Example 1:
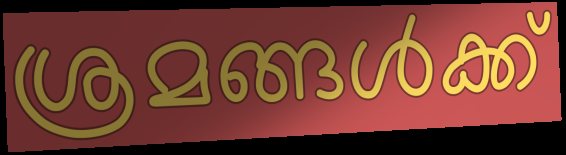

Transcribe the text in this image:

ശ്രമങ്ങൾക്ക്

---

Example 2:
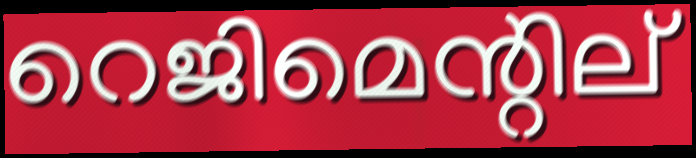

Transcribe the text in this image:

റെജിമെന്റില്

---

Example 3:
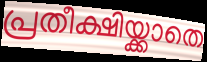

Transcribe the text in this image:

പ്രതീക്ഷിയ്ക്കാതെ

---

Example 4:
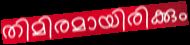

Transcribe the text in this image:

തിമിരമായിരിക്കും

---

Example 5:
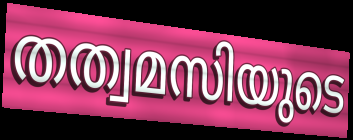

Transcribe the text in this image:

തത്വമസിയുടെ